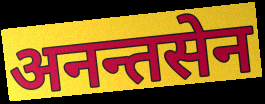
अनन्तसेन